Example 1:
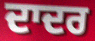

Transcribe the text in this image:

ਦਾਦਰ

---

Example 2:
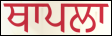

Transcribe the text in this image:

ਥਾਪਲਾ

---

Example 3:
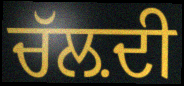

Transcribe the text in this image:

ਚੱਲ਼ਦੀ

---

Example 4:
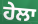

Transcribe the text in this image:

ਹੇਲਾ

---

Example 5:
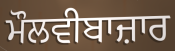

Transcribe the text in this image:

ਮੌਲਵੀਬਾਜ਼ਾਰ